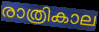
രാത്രികാല